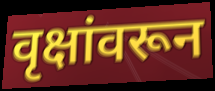
वृक्षांवरून